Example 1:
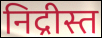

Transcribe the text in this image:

निद्रीस्त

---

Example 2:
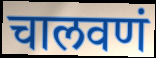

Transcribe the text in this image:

चालवणं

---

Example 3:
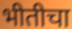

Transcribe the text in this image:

भीतीचा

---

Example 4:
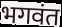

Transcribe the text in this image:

भगवंत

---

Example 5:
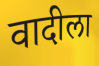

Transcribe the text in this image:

वादीला